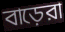
বাড়েরা